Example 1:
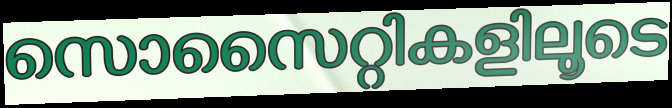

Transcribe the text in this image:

സൊസൈറ്റികളിലൂടെ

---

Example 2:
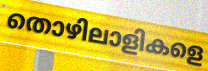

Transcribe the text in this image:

തൊഴിലാളികളെ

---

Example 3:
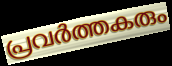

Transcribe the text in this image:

പ്രവർത്തകരും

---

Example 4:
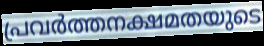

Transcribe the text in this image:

പ്രവർത്തനക്ഷമതയുടെ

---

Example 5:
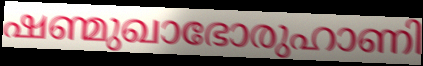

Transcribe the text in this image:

ഷണ്മുഖാഭോരുഹാണി